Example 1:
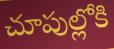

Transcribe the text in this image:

చూపుల్లోకి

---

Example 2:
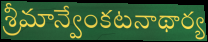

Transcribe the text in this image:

శ్రీమాన్వేంకటనాథార్య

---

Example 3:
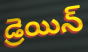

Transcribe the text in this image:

డ్రెయిన్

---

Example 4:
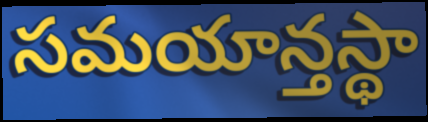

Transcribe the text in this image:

సమయాన్తస్థా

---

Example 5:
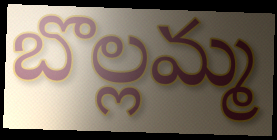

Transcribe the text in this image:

బొల్లమ్మ